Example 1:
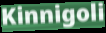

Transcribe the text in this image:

Kinnigoli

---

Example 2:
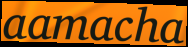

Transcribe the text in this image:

aamacha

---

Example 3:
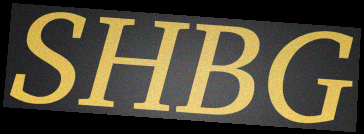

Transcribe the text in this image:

SHBG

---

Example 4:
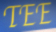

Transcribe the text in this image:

TEE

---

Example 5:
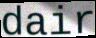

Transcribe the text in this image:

dair